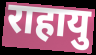
राहायु